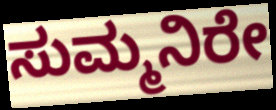
ಸುಮ್ಮನಿರೇ